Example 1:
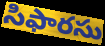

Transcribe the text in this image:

సిఫారసు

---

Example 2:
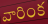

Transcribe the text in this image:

వారింక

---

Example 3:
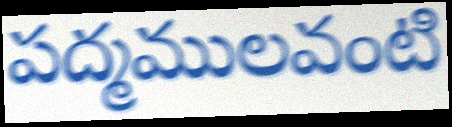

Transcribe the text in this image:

పద్మములవంటి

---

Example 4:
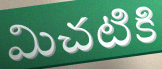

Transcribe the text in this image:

మిచటికి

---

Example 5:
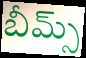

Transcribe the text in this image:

బీమ్స్